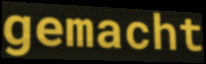
gemacht